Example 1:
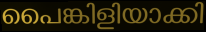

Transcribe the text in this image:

പൈങ്കിളിയാക്കി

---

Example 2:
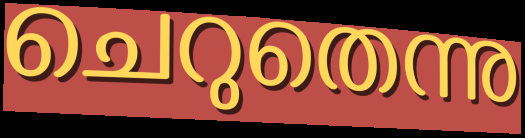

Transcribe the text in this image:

ചെറുതെന്നു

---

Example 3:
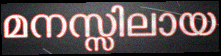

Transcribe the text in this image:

മനസ്സിലായ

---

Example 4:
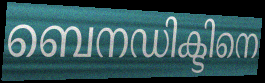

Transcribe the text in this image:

ബെനഡിക്ടിനെ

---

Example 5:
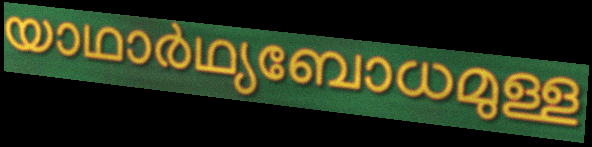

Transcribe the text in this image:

യാഥാർഥ്യബോധമുള്ള